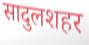
सादुलशहर